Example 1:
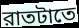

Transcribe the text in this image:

রাতটাতে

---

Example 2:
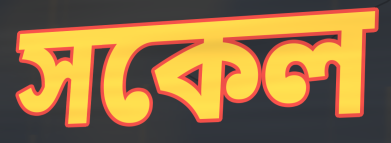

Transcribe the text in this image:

সকেল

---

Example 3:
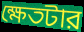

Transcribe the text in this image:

ক্ষেতটার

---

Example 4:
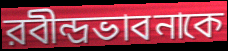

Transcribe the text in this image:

রবীন্দ্রভাবনাকে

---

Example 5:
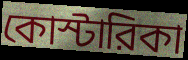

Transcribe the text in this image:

কোস্টারিকা